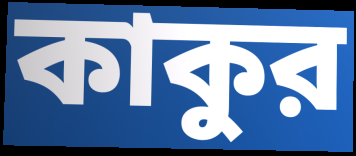
কাকুর